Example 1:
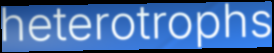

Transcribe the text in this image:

heterotrophs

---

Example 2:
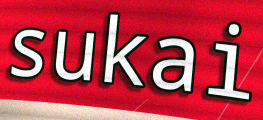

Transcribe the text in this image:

sukai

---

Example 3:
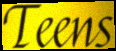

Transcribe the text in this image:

Teens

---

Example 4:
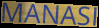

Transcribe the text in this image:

MANASI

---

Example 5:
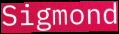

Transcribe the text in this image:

Sigmond